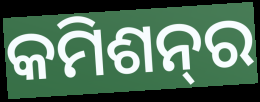
କମିଶନ୍‌ର